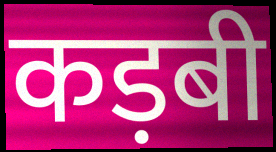
कड़बी